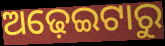
ଅଢ଼େଇଟାରୁ